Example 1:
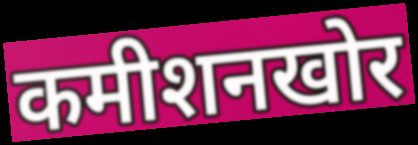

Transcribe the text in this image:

कमीशनखोर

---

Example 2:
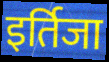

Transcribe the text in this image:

इर्तिजा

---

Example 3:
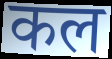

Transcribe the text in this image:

कल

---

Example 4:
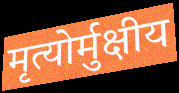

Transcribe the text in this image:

मृत्‍योर्मुक्षीय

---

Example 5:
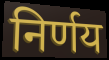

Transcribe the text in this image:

निर्णय